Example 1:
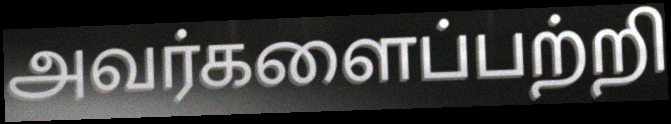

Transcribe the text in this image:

அவர்களைப்பற்றி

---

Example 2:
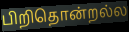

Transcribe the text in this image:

பிறிதொன்றல்ல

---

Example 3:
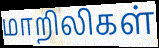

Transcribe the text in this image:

மாறிலிகள்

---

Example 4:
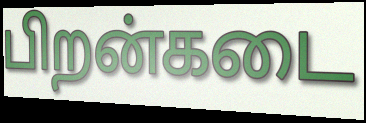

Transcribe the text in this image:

பிறன்கடை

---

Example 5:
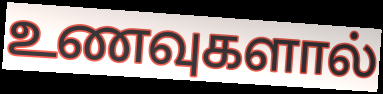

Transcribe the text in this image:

உணவுகளால்